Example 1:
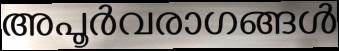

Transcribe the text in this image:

അപൂർവരാഗങ്ങൾ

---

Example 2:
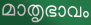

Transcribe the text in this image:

മാതൃഭാവം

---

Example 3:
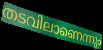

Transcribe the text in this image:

തടവിലാണെന്നും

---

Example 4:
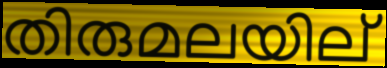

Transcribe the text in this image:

തിരുമലയില്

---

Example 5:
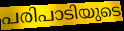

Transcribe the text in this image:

പരിപാടിയുടെ